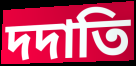
দদাতি